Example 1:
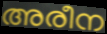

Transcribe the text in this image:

അരീന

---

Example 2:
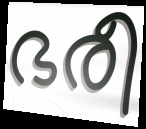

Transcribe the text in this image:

ഭരീ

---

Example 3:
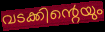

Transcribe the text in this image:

വടക്കിന്റെയും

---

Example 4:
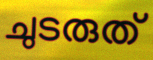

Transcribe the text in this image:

ചുടരുത്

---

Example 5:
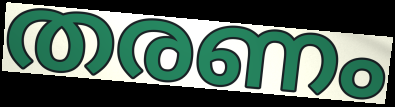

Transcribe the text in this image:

തരണം